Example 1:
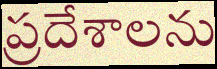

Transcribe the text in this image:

ప్రదేశాలను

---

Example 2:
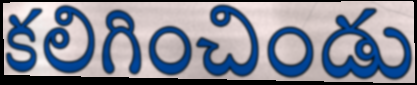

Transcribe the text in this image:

కలిగించిండు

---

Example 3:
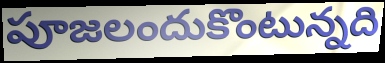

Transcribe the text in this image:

పూజలందుకొంటున్నది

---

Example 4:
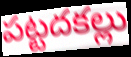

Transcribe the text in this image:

పట్టదకల్లు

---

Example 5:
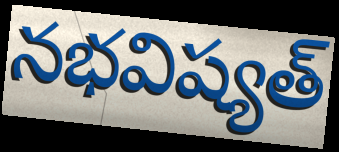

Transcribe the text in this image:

నభవిష్యత్